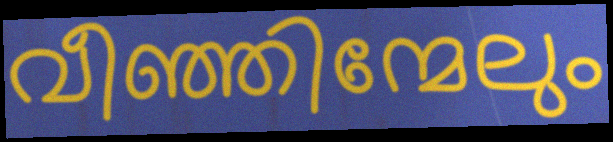
വീഞ്ഞിന്മേലും